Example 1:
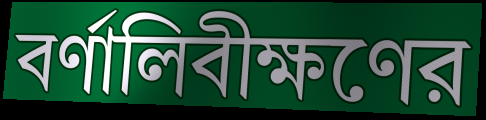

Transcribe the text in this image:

বর্ণালিবীক্ষণের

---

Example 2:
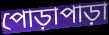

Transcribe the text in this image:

পোড়াপাড়া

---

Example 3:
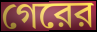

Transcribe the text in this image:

গেরের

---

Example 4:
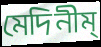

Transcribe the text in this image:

মেদিনীম্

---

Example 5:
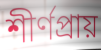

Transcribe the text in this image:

শীর্ণপ্রায়